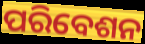
ପରିବେଶନ